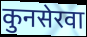
कुनसेरवा